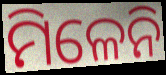
ମିଳେନି